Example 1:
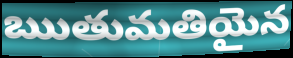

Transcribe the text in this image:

ఋతుమతియైన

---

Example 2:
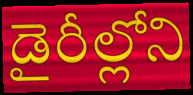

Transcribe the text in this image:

డైరీల్లోని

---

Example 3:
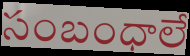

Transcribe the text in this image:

సంబంధాలే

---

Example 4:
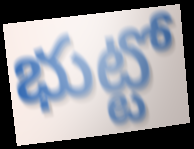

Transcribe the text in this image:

భుట్టో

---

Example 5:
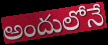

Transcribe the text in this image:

అందులోనే